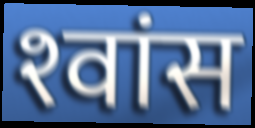
श्वांस